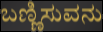
ಬಣ್ಣಿಸುವನು